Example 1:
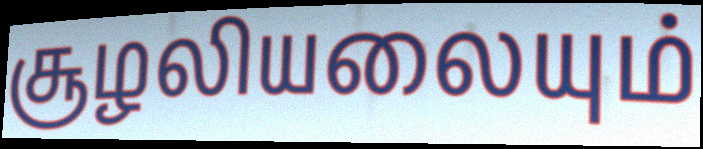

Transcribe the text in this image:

சூழலியலையும்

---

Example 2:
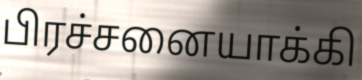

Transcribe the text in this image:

பிரச்சனையாக்கி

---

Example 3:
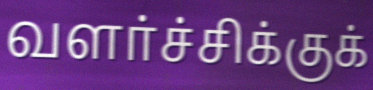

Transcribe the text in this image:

வளர்ச்சிக்குக்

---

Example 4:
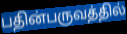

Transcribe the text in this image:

பதின்பருவத்தில்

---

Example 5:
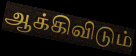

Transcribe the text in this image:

ஆக்கிவிடும்